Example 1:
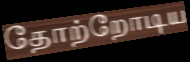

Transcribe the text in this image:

தோற்றோடிய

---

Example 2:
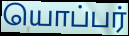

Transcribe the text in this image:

யொப்பர்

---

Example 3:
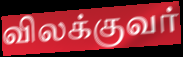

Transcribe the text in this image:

விலக்குவர்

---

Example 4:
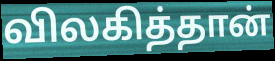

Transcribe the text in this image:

விலகித்தான்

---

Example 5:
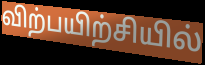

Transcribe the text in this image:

விற்பயிற்சியில்